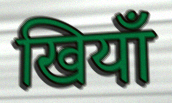
खियाँ